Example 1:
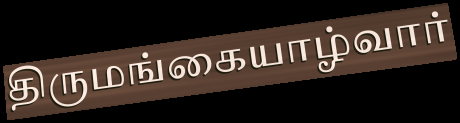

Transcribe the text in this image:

திருமங்கையாழ்வார்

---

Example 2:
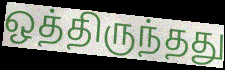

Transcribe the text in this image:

ஒத்திருந்தது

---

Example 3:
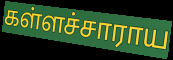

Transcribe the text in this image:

கள்ளச்சாராய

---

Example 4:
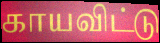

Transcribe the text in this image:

காயவிட்டு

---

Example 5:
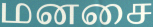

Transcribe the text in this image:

மனசை